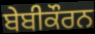
ਬੇਬੀਕੌਰਨ